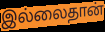
இல்லைதான்